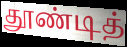
தூண்டித்